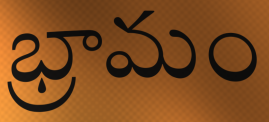
భ్రామం